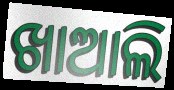
ଖାଆଲି